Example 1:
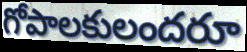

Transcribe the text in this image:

గోపాలకులందరూ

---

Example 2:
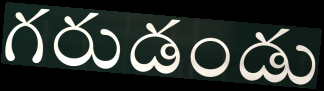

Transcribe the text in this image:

గరుడండు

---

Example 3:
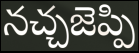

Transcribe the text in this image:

నచ్చజెప్పి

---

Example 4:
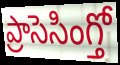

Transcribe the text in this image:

ప్రాసెసింగ్తో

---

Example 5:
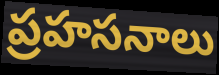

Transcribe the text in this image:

ప్రహసనాలు